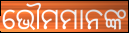
ଭୌମମାନଙ୍କ